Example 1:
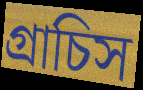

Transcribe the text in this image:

গ্রাচিস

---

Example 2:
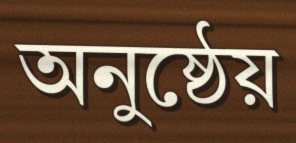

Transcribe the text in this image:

অনুষ্ঠেয়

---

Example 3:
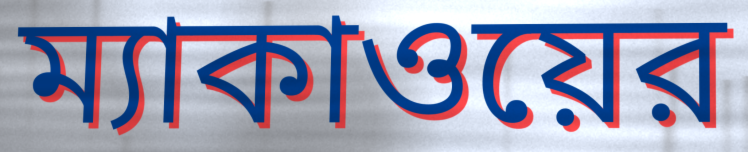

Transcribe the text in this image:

ম্যাকাওয়ের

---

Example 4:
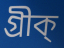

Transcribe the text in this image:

গ্রীক্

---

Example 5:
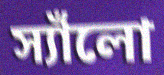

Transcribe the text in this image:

স্যাঁলো